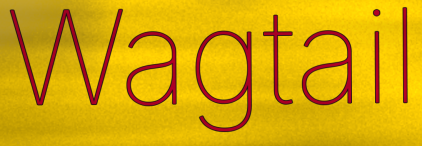
Wagtail